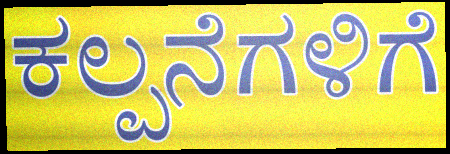
ಕಲ್ಪನೆಗಳಿಗೆ